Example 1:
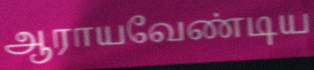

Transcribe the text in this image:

ஆராயவேண்டிய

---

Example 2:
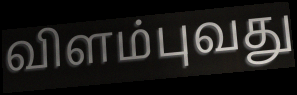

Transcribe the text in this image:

விளம்புவது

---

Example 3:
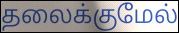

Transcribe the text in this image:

தலைக்குமேல்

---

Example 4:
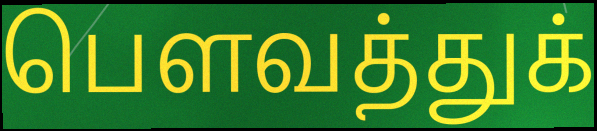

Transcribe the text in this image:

பௌவத்துக்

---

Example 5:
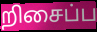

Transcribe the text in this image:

றிசைப்ப